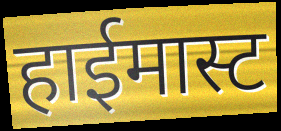
हाईमास्ट